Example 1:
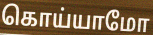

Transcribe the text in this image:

கொய்யாமோ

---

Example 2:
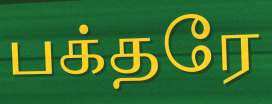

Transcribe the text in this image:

பக்தரே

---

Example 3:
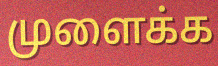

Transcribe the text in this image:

முளைக்க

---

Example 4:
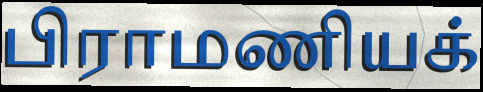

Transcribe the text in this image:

பிராமணியக்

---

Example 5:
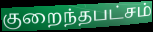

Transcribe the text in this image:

குறைந்தபட்சம்